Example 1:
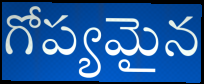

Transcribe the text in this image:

గోప్యమైన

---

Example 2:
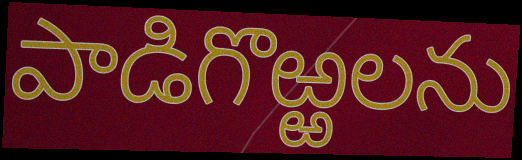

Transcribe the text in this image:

పాడిగొఱ్ఱలను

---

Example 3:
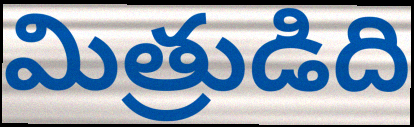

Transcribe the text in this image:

మిత్రుడిది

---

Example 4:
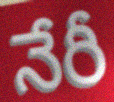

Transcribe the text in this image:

నేరీ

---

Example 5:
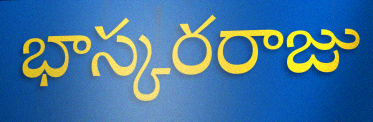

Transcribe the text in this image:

భాస్కరరాజు